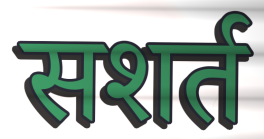
सशर्त